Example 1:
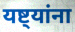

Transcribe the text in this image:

यष्ट्यांना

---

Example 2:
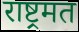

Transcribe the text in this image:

राष्ट्रमत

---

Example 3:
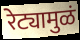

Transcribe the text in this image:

रेट्यामुळं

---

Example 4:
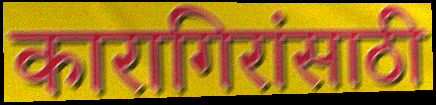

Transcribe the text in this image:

कारागिरांसाठी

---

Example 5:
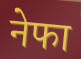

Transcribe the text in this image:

नेफा